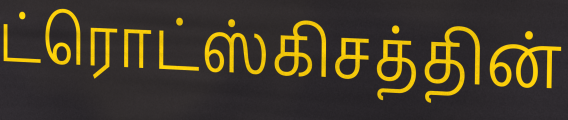
ட்ரொட்ஸ்கிசத்தின்